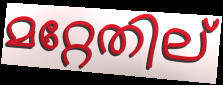
മറ്റേതില്